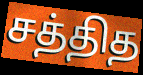
சத்தித